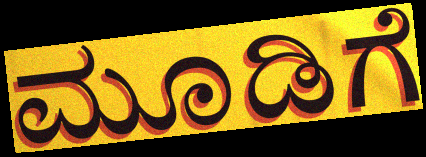
ಮೂಡಿಗೆ